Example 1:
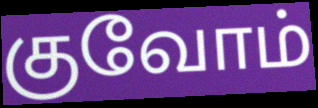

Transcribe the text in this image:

குவோம்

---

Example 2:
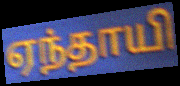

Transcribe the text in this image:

ஏந்தாயி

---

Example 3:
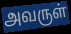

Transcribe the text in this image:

அவருள்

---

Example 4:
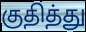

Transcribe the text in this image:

குதித்து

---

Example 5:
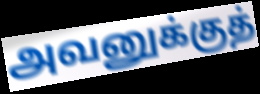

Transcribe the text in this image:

அவனுக்குத்